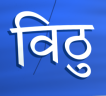
विठु